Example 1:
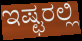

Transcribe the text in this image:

ಇಷ್ಟರಲ್ಲಿ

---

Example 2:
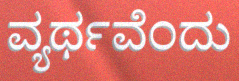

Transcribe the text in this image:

ವ್ಯರ್ಥವೆಂದು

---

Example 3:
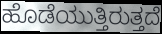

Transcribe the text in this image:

ಹೊಡೆಯುತ್ತಿರುತ್ತದೆ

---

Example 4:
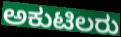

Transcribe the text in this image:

ಅಕುಟಿಲರು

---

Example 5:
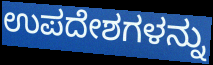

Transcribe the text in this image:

ಉಪದೇಶಗಳನ್ನು